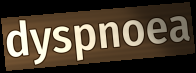
dyspnoea